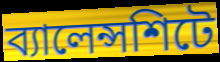
ব্যালেন্সশিটে